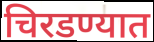
चिरडण्यात